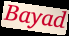
Bayad